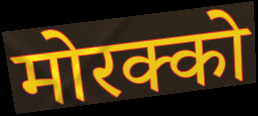
मोरक्को